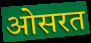
ओसरत